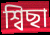
শ্বিছা